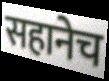
सहानेच